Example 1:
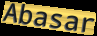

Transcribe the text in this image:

Abasar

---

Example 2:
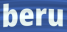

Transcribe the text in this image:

beru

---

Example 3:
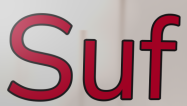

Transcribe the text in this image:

Suf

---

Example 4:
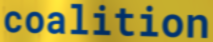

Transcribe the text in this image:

coalition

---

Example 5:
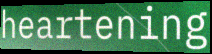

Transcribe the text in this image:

heartening